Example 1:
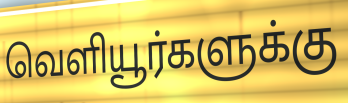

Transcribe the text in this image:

வெளியூர்களுக்கு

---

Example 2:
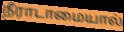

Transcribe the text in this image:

நீராடாமையால்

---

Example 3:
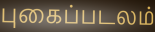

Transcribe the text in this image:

புகைப்படலம்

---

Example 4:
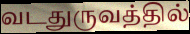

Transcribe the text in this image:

வடதுருவத்தில்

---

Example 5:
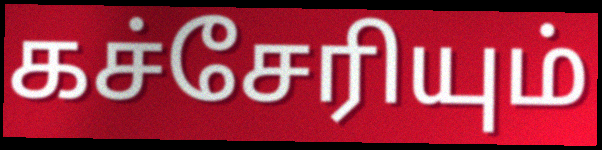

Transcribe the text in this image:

கச்சேரியும்